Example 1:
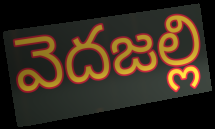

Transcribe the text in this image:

వెదజల్లి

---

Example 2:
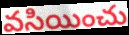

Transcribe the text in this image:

వసియించు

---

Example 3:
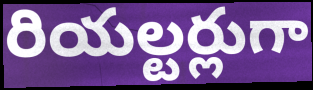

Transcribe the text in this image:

రియల్టర్లుగా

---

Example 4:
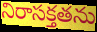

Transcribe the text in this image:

నిరాసక్తతను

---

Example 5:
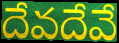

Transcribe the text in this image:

దేవదేవే